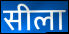
सीला